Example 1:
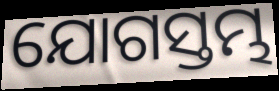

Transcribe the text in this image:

ଯୋଗସ୍ତମ୍ଭ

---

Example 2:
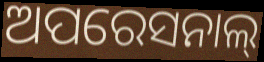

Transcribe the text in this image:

ଅପରେସନାଲ୍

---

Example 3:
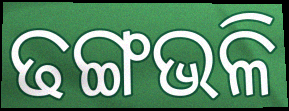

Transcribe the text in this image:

ଢଙ୍ଗଭଳି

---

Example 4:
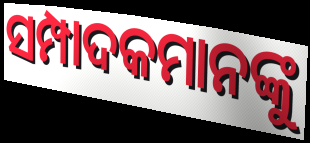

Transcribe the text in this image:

ସମ୍ପାଦକମାନଙ୍କୁ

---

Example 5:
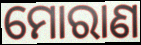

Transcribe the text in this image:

ମୋରାଣ